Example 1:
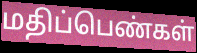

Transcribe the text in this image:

மதிப்பெண்கள்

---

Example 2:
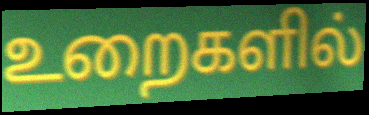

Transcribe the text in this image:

உறைகளில்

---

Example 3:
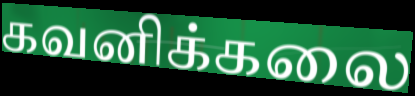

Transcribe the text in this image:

கவனிக்கலை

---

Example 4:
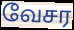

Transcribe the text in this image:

வேசர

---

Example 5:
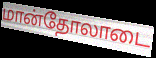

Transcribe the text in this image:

மான்தோலாடை